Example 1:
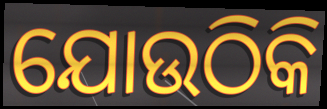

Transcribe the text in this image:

ଯୋଉଠିକି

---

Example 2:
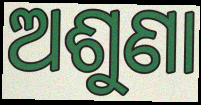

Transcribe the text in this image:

ଅଶୁଣା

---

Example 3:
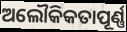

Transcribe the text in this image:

ଅଲୌକିକତାପୂର୍ଣ୍ଣ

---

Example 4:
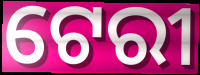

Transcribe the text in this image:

ଟେରୀ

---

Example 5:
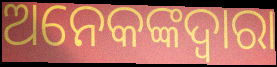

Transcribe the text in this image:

ଅନେକଙ୍କଦ୍ୱାରା